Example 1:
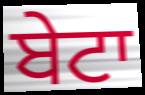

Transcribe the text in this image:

ਬੇਟਾ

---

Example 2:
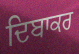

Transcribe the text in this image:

ਦਿਬਾਕਰ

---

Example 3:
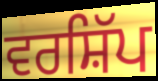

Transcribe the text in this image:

ਵਰਸ਼ਿੱਪ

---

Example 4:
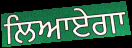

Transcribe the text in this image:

ਲਿਆਏਗਾ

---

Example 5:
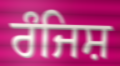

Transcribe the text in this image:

ਰੰਜਿਸ਼